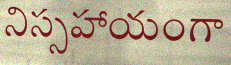
నిస్సహాయంగా